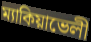
ম্যাকিয়াভেলী